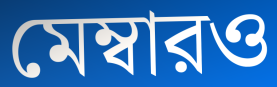
মেম্বারও